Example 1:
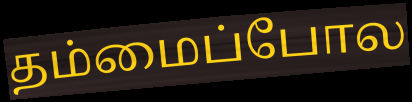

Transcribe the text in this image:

தம்மைப்போல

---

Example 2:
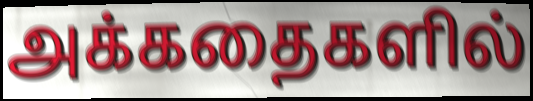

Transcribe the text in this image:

அக்கதைகளில்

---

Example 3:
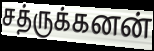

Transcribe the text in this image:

சத்ருக்கனன்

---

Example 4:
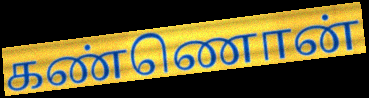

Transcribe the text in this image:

கண்ணொன்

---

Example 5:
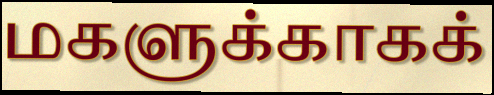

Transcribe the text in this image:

மகளுக்காகக்